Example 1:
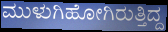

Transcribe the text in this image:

ಮುಳುಗಿಹೋಗಿರುತ್ತಿದ್ದ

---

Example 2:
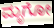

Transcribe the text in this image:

ಮೃಗೋ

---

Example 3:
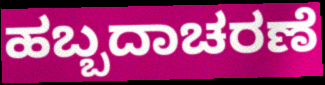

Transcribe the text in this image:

ಹಬ್ಬದಾಚರಣೆ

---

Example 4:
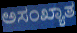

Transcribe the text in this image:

ಅಸಂಖ್ಯಾತ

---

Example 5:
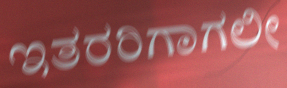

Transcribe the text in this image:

ಇತರರಿಗಾಗಲೀ